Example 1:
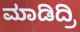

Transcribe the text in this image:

ಮಾಡಿದ್ರಿ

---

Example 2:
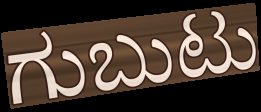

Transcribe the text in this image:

ಗುಬುಟು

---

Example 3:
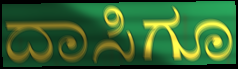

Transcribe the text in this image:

ದಾಸಿಗೂ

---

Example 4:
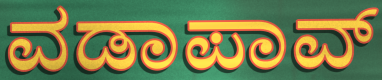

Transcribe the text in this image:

ವಡಾಪಾವ್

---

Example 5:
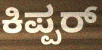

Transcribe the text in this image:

ಕಿಪ್ಪರ್